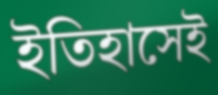
ইতিহাসেই